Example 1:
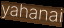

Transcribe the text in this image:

yahanai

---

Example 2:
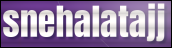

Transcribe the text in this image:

snehalatajj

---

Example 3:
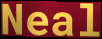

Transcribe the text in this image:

Neal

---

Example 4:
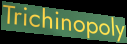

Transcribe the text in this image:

Trichinopoly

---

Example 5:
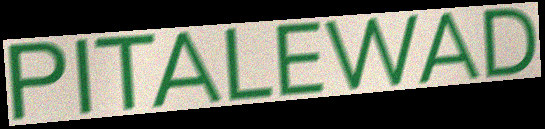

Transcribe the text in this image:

PITALEWAD